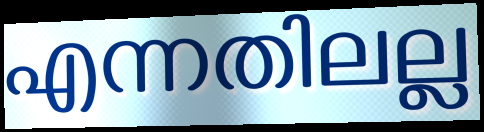
എന്നതിലല്ല